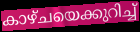
കാഴ്ചയെക്കുറിച്ച്